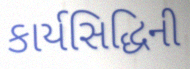
કાર્યસિદ્ધિની